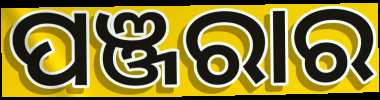
ପଞ୍ଜରାର